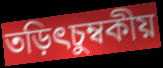
তড়িৎচুম্বকীয়